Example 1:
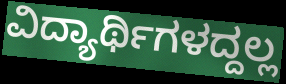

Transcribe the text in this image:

ವಿದ್ಯಾರ್ಥಿಗಳದ್ದಲ್ಲ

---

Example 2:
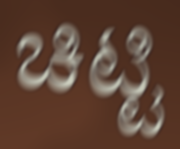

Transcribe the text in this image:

ಚಿಟ್ಟಿ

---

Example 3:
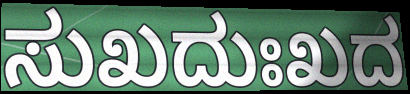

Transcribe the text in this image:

ಸುಖದುಃಖದ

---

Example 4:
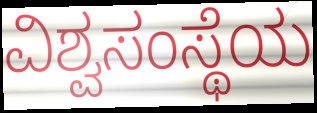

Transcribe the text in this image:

ವಿಶ್ವಸಂಸ್ಥೆಯ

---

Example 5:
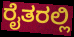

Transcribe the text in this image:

ರೈತರಲ್ಲಿ